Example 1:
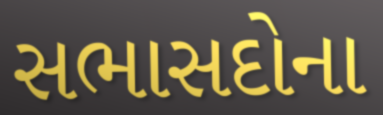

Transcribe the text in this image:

સભાસદોના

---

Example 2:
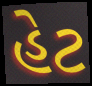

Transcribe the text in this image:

હેટ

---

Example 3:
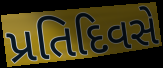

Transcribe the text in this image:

પ્રતિદિવસે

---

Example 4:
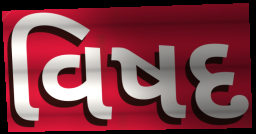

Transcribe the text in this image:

વિષદ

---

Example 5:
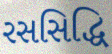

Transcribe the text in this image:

રસસિદ્ધિ